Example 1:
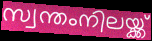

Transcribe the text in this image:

സ്വന്തംനിലയ്ക്ക്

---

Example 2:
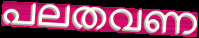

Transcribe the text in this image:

പലതവണ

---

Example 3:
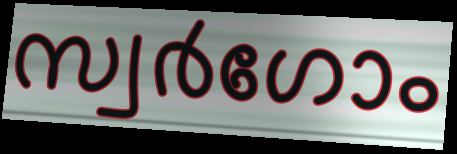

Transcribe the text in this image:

സ്വർഗോം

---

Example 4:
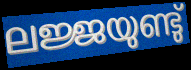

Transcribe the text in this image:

ലജ്ജയുണ്ടു്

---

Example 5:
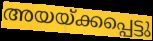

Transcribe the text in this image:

അയയ്ക്കപ്പെട്ടു